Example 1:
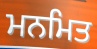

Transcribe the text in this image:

ਮਨਮਿਤ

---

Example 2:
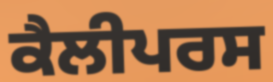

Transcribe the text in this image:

ਕੈਲੀਪਰਸ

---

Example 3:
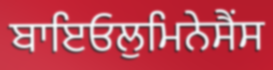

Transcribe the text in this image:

ਬਾਇਓਲੁਮਿਨੇਸੈਂਸ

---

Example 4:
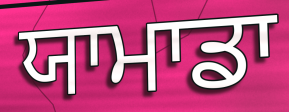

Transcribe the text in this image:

ਯਾਮਾਡਾ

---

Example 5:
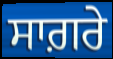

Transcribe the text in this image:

ਸਾਗ਼ਰੇ